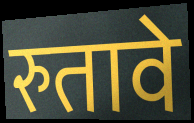
रुतावे